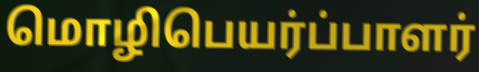
மொழிபெயர்ப்பாளர்